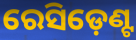
ରେସିଡ଼େଣ୍ଟ